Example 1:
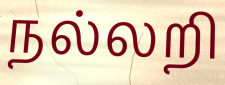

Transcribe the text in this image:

நல்லறி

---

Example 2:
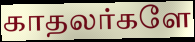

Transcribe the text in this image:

காதலர்களே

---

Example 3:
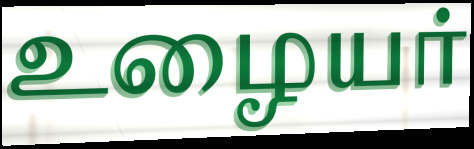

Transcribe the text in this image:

உழையர்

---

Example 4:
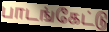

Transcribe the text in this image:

பாடங்கேட்டு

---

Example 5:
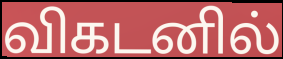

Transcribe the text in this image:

விகடனில்